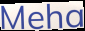
Meha